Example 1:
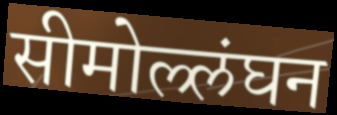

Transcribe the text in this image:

सीमोल्लंघन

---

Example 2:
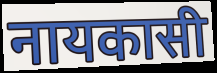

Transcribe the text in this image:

नायकासी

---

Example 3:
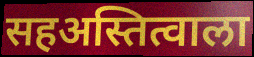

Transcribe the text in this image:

सहअस्तित्वाला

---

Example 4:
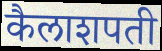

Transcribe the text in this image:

कैलाशपती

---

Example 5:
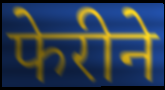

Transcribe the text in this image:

फेरीने